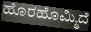
ಹೊರಹೊಮ್ಮಿದೆ